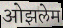
ओझलेम